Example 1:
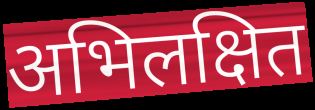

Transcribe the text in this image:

अभिलक्षित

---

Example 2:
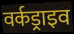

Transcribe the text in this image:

वर्कड्राइव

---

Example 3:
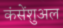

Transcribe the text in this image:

कंसेंशुअल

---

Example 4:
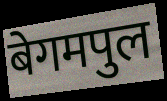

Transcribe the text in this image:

बेगमपुल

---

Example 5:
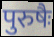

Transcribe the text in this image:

पुरुषैः